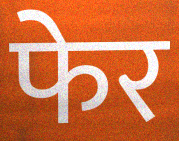
फेर